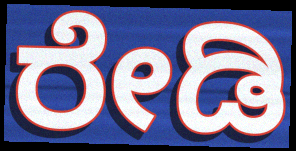
ರೇಡಿ